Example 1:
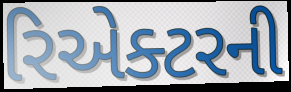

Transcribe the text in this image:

રિએક્ટરની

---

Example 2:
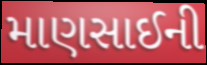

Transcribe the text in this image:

માણસાઈની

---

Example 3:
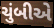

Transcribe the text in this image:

ચુંબીએ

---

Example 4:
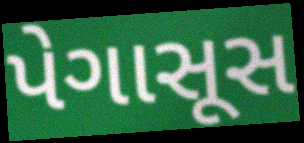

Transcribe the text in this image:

પેગાસૂસ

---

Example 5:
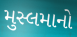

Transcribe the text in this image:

મુસ્લમાનો